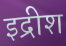
इद्रीश